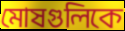
মোষগুলিকে